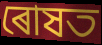
ৰোষত